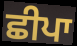
ਛੀਪਾ